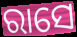
ରାସେ